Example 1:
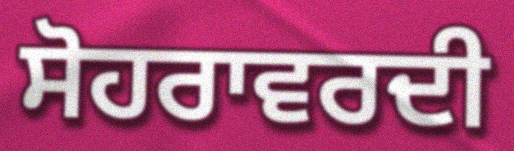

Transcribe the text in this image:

ਸੋਹਰਾਵਰਦੀ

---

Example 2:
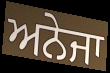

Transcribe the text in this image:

ਅਨੇਜਾ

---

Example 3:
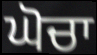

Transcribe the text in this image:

ਘੋਚਾ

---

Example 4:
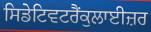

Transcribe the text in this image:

ਸਿਡੇਟਿਵਟਰੈਂਕੁਲਾਈਜ਼ਰ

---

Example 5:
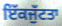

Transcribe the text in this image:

ਇੱਕਜੁੱਟਤਾ